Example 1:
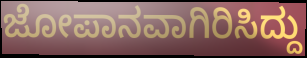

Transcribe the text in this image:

ಜೋಪಾನವಾಗಿರಿಸಿದ್ದು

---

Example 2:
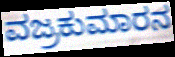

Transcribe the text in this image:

ವಜ್ರಕುಮಾರನ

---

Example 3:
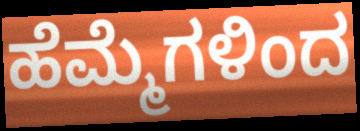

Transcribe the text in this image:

ಹೆಮ್ಮೆಗಳಿಂದ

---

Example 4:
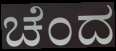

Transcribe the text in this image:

ಚೆಂದ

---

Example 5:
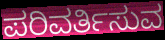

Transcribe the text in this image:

ಪರಿವರ್ತಿಸುವ